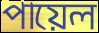
পায়েল